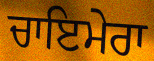
ਚਾਇਮੇਰਾ